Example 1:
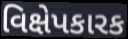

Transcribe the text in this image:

વિક્ષેપકારક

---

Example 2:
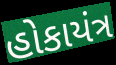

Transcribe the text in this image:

હોકાયંત્ર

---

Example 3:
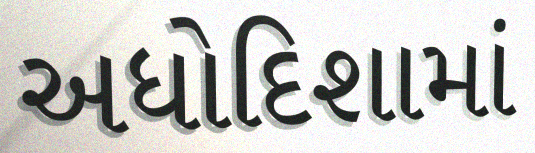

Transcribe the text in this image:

અધોદિશામાં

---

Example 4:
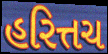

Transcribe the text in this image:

હરિત્તચ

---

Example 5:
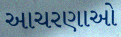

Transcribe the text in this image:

આચરણાઓ